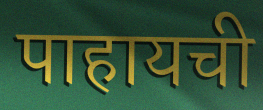
पाहायची